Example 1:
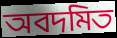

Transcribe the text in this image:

অবদমিত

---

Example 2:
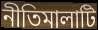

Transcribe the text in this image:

নীতিমালাটি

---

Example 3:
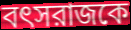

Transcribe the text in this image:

বৎসরাজকে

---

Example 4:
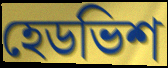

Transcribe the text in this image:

হেডভিশ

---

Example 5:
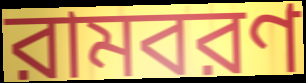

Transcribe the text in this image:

রামবরণ